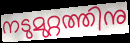
നടുമുറ്റത്തിനു